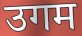
उगम